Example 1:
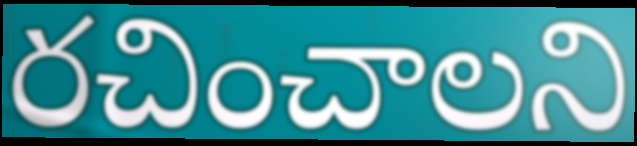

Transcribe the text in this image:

రచించాలని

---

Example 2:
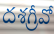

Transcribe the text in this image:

దశగ్రీవో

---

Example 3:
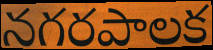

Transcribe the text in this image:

నగరపాలక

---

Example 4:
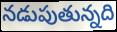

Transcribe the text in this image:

నడుపుతున్నది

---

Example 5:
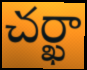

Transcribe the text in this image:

చర్ఖా